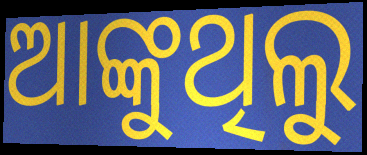
ଆଙ୍କୁଥିଲୁ